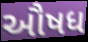
ઔષધ